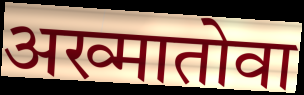
अख्मातोवा